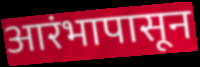
आरंभापासून